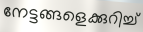
നേട്ടങ്ങളെക്കുറിച്ച്